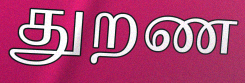
துறண